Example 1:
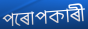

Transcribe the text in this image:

পৰোপকাৰী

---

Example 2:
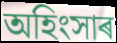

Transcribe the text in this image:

অহিংসাৰ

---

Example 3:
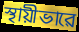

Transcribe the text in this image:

স্থায়ীভাৱে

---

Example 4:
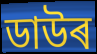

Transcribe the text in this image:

ডাউৰ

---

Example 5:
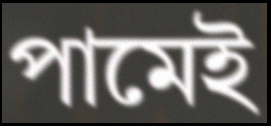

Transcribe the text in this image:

পামেই